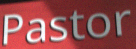
Pastor